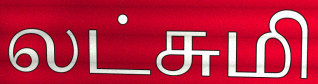
லட்சுமி